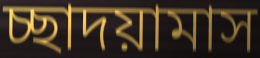
চ্ছাদয়ামাস